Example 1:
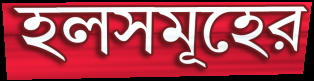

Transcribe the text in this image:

হলসমূহের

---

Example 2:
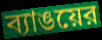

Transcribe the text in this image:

ব্যাঙয়ের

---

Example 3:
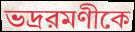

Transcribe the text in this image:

ভদ্ররমণীকে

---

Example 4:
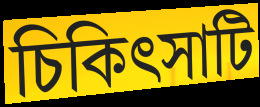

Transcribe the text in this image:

চিকিৎসাটি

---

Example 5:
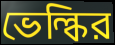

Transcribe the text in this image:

ভেল্কির